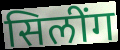
सिलींग